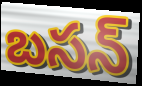
బసన్